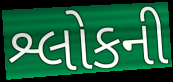
શ્લોકની